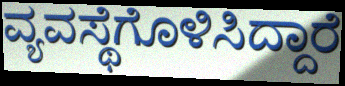
ವ್ಯವಸ್ಥೆಗೊಳಿಸಿದ್ದಾರೆ